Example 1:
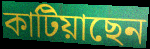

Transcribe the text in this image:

কাটিয়াছেন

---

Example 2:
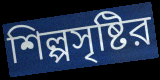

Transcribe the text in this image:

শিল্পসৃষ্টির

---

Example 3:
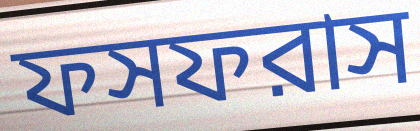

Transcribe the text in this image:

ফসফরাস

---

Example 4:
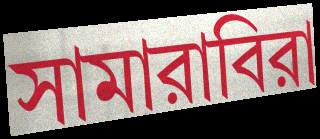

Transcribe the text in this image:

সামারাবিরা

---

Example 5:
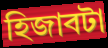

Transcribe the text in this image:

হিজাবটা